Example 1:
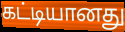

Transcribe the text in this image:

கட்டியானது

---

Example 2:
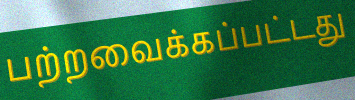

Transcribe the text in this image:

பற்றவைக்கப்பட்டது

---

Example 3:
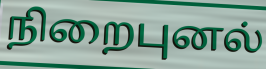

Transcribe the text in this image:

நிறைபுனல்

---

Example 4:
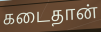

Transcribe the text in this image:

கடைதான்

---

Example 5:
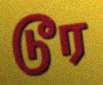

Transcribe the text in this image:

டூர